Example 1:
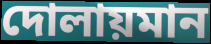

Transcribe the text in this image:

দোলায়মান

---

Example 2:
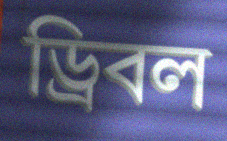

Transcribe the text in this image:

ড্রিবল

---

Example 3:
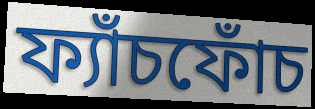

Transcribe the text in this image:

ফ্যাঁচফোঁচ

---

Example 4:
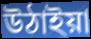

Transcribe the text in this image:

উঠাইয়া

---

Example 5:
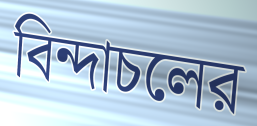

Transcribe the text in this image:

বিন্দাচলের